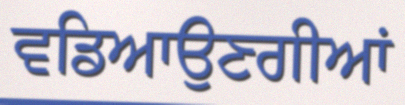
ਵਡਿਆਉਣਗੀਆਂ